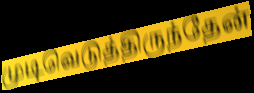
முடிவெடுத்திருந்தேன்